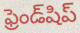
ఫ్రెండ్‌షిప్